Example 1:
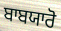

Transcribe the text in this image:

ਬਾਬਯਾਰੋ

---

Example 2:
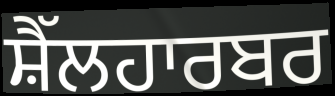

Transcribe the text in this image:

ਸ਼ੈੱਲਹਾਰਬਰ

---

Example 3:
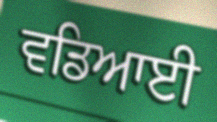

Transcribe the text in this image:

ਵਡਿਆਈ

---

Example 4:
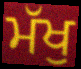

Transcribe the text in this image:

ਮੱਖੁ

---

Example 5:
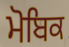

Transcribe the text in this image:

ਮੋਬਿਕ